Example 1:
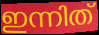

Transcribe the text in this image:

ഇന്നിത്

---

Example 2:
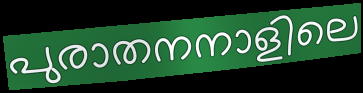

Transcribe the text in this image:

പുരാതനനാളിലെ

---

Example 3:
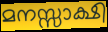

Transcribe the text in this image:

മനസ്സാക്ഷി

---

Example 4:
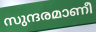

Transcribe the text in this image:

സുന്ദരമാണീ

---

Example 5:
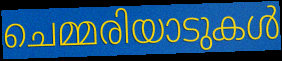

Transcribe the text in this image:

ചെമ്മരിയാടുകൾ